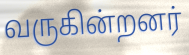
வருகின்றனர்